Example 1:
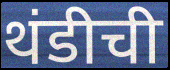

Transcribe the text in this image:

थंडीची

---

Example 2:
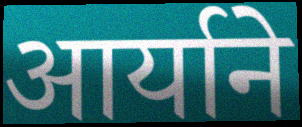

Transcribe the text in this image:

आर्याने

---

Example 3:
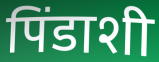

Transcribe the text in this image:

पिंडाशी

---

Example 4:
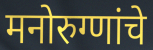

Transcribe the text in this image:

मनोरुग्णांचे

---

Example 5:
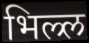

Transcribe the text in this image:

भिल्ल